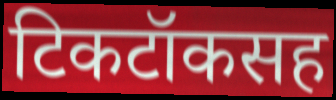
टिकटॉकसह